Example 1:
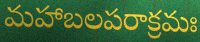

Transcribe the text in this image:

మహాబలపరాక్రమః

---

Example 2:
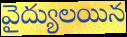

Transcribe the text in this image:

వైద్యులయిన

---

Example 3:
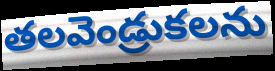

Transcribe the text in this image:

తలవెండ్రుకలను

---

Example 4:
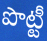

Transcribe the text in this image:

పొట్టీ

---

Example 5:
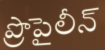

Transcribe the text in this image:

ప్రొపైలీన్